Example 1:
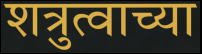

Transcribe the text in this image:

शत्रुत्वाच्या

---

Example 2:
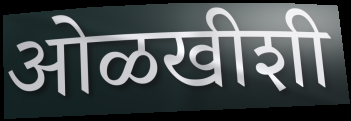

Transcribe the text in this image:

ओळखीशी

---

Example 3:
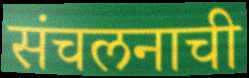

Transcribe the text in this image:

संचलनाची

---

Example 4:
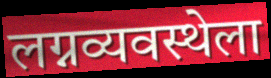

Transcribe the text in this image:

लग्नव्यवस्थेला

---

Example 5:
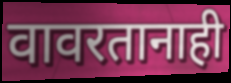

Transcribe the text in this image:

वावरतानाही